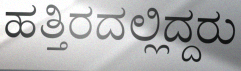
ಹತ್ತಿರದಲ್ಲಿದ್ದರು